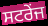
ਸਟਰੇਂਜ